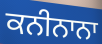
ਕਨੀਨਾਨਾ